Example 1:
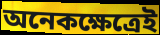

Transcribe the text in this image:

অনেকক্ষেত্রেই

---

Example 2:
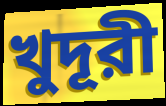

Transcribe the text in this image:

খুদূরী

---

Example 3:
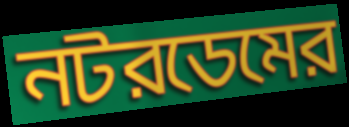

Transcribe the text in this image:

নটরডেমের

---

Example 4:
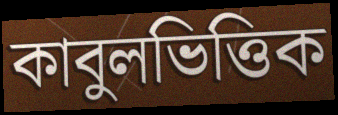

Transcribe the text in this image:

কাবুলভিত্তিক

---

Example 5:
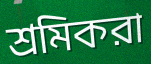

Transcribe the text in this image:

শ্রমিকরা